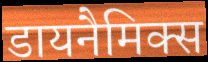
डायनैमिक्स